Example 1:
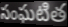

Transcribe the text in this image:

సంఘటిత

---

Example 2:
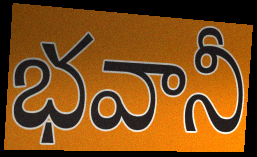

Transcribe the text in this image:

భవానీ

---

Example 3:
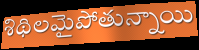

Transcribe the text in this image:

శిథిలమైపోతున్నాయి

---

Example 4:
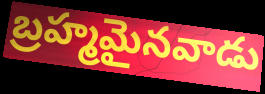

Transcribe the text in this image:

బ్రహ్మమైనవాడు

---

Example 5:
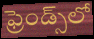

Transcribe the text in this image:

ఫ్రెండ్స్‌లో